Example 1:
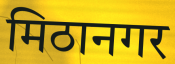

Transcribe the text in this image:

मिठानगर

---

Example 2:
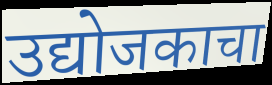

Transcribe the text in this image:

उद्योजकाचा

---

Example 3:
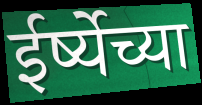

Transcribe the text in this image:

ईर्ष्येच्या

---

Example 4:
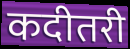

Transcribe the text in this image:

कदीतरी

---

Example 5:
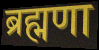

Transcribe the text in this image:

ब्रह्मणा